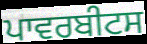
ਪਾਵਰਬੀਟਸ